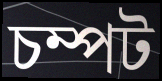
চম্পট